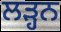
ਲੜ੍ਹਨ